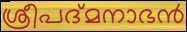
ശ്രീപദ്മനാഭൻ